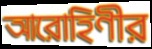
আরোহিণীর